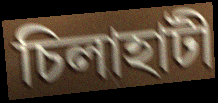
চিলাহাটী